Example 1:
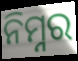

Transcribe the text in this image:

ନିମ୍ନର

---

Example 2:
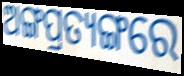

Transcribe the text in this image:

ଅଙ୍ଗପ୍ରତ୍ୟଙ୍ଗରେ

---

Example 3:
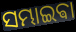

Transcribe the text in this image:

ସମ୍ଭାଇଵା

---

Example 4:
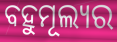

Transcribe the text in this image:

ବହୁମୂଲ୍ୟର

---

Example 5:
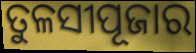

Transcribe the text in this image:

ତୁଳସୀପୂଜାର